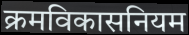
क्रमविकासनियम